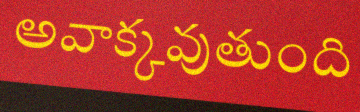
అవాక్కవుతుంది